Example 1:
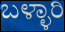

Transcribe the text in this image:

ಬಳ್ಳಾರಿ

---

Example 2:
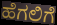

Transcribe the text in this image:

ಹೆಗಲಿಗೆ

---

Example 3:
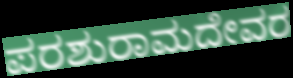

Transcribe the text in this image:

ಪರಶುರಾಮದೇವರ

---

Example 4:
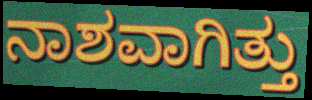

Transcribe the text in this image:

ನಾಶವಾಗಿತ್ತು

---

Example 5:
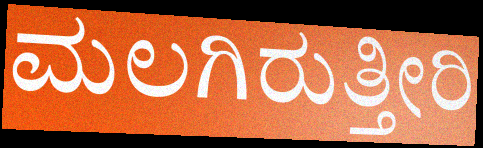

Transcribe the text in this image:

ಮಲಗಿರುತ್ತೀರಿ